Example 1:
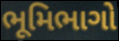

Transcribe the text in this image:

ભૂમિભાગો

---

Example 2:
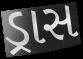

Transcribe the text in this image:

ડ્રાસ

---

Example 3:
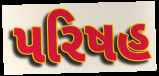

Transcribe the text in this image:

પરિષહ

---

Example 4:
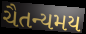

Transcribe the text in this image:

ચૈતન્યમય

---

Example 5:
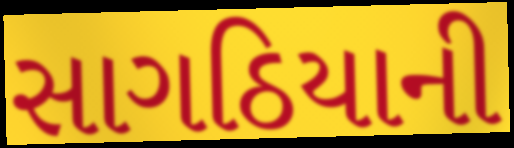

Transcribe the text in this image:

સાગઠિયાની